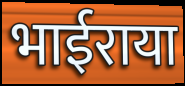
भाईराया